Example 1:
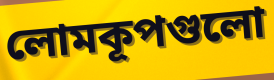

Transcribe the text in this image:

লোমকূপগুলো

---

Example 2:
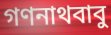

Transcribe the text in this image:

গণনাথবাবু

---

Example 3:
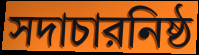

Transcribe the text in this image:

সদাচারনিষ্ঠ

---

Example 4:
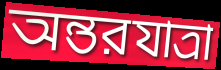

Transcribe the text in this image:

অন্তরযাত্রা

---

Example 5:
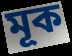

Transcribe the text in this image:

মূক